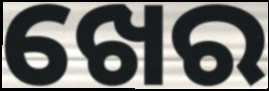
ଖେର